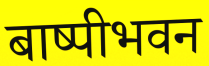
बाष्पीभवन